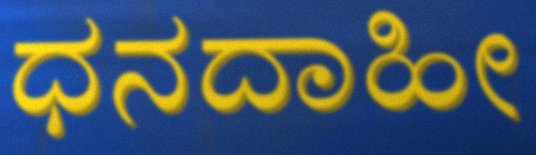
ಧನದಾಹೀ